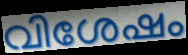
വിശേഷം